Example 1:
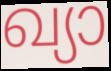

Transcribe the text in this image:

ഖ്യാ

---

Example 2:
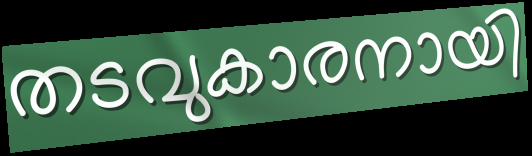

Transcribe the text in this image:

തടവുകാരനായി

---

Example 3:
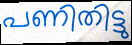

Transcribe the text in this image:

പണിതിട്ടു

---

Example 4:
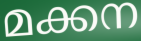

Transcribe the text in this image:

മക്കന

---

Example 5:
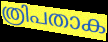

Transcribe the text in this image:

ത്രിപതാക